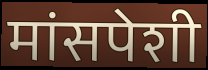
मांसपेशी